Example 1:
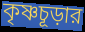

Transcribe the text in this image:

কৃষ্ণচূড়ার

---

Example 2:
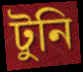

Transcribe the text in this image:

টুনি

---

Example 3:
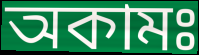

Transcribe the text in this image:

অকামঃ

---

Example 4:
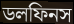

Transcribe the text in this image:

ডলফিনস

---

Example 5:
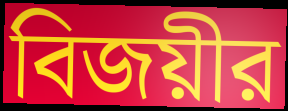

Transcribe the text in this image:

বিজয়ীর